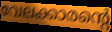
വേലക്കാരന്റെ